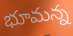
భూమన్న